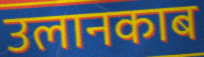
उलानकाब